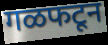
गळफटून